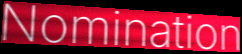
Nomination